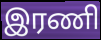
இரணி